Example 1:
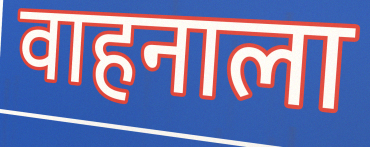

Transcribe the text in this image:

वाहनाला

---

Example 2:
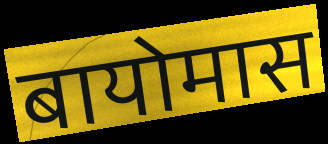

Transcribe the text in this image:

बायोमास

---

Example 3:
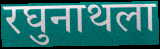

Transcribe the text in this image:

रघुनाथला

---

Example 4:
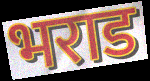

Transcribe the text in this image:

भराड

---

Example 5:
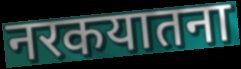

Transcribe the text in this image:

नरकयातना